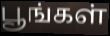
பூங்கள்